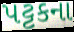
પટ્ટકના